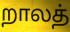
றாலத்